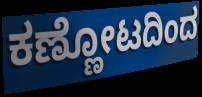
ಕಣ್ಣೋಟದಿಂದ